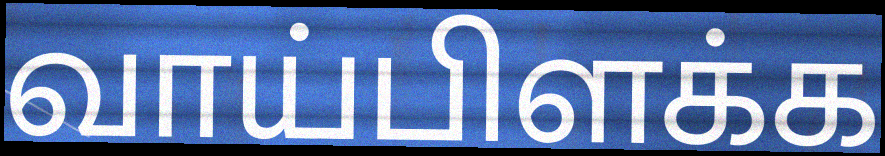
வாய்பிளக்க